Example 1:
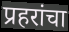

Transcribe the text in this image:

प्रहरांचा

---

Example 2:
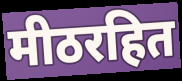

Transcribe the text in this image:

मीठरहित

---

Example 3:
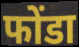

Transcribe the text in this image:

फोंडा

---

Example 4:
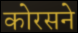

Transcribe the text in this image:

कोरसने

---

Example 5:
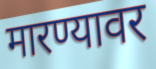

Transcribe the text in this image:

मारण्यावर